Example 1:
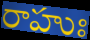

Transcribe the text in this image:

రాహుః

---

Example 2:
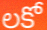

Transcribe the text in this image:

లకో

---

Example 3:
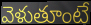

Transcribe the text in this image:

వెళుతూంటే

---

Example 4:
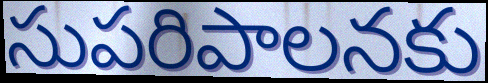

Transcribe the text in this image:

సుపరిపాలనకు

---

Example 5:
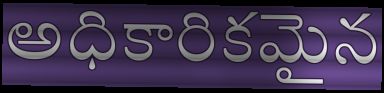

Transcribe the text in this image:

అధికారికమైన